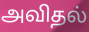
அவிதல்